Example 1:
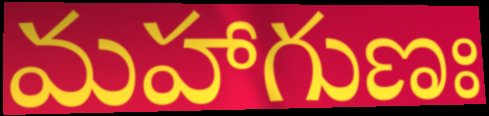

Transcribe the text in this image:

మహాగుణః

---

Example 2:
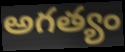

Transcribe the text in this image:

అగత్యం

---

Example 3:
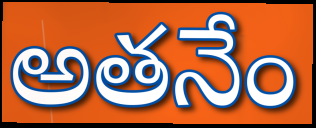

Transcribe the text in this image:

అతనేం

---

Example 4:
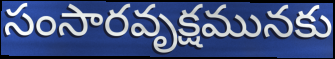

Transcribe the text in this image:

సంసారవృక్షమునకు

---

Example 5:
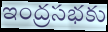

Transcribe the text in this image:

ఇంద్రసభకు